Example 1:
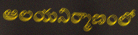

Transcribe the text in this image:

ఆలయనిర్మాణంలో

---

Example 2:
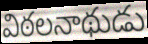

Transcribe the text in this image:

విఠలనాథుడు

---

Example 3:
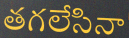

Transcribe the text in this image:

తగలేసినా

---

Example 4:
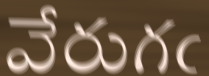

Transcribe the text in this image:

వేరుగఁ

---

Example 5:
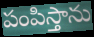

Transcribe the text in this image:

పంపిస్తాను